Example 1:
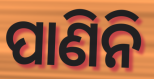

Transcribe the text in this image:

ପାଣିନି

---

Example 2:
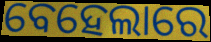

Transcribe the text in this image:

ବେହେଲାରେ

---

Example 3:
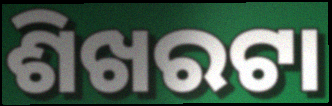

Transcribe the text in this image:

ଶିଖରଟା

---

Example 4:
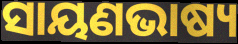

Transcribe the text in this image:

ସାୟଣଭାଷ୍ୟ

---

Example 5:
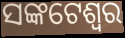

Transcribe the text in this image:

ସଙ୍କଟେଶ୍ୱର